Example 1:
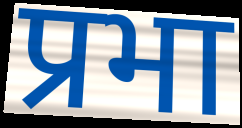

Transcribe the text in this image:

प्रभा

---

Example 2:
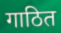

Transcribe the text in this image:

गाठित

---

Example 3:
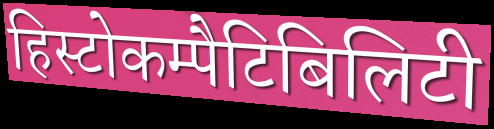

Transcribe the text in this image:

हिस्टोकम्पैटिबिलिटी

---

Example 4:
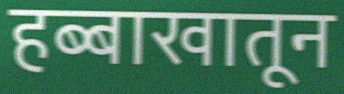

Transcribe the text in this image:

हब्बाखातून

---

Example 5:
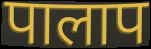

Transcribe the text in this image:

पालाप